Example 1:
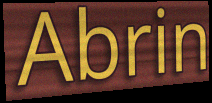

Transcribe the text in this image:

Abrin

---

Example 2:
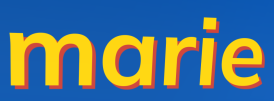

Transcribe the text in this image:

marie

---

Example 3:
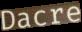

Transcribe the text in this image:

Dacre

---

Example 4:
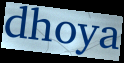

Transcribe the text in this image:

dhoya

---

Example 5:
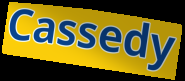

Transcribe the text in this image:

Cassedy